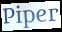
Piper